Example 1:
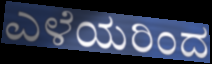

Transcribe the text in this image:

ಎಳೆಯರಿಂದ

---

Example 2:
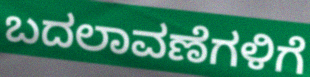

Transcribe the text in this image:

ಬದಲಾವಣೆಗಳಿಗೆ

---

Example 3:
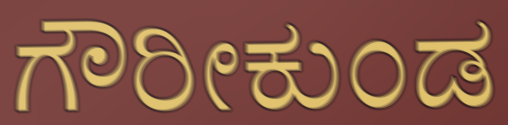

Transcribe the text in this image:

ಗೌರೀಕುಂಡ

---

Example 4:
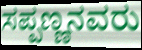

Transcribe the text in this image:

ಸಪ್ಪಣ್ಣನವರು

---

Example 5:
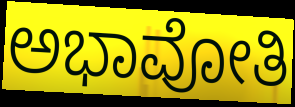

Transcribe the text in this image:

ಅಭಾವೋತಿ